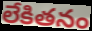
లేకితనం